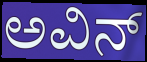
ಅವಿನ್